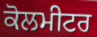
ਕੋਲਮੀਟਰ